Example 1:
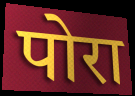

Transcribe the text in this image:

पोरा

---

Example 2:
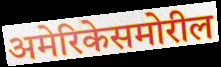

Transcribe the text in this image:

अमेरिकेसमोरील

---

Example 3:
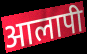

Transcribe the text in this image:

आलापी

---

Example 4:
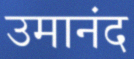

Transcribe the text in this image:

उमानंद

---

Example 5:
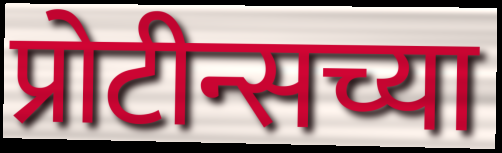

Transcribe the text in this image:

प्रोटीन्सच्या